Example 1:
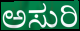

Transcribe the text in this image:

ಅಸುರಿ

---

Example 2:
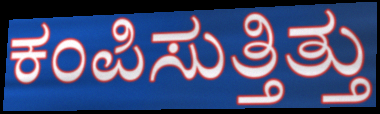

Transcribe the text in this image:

ಕಂಪಿಸುತ್ತಿತ್ತು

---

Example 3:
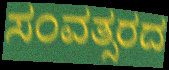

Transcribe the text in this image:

ಸಂವತ್ಸರದ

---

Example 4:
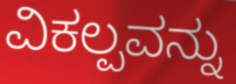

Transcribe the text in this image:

ವಿಕಲ್ಪವನ್ನು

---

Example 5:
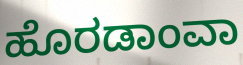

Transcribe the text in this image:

ಹೊರಡಾಂವಾ